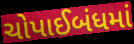
ચોપાઈબંધમાં